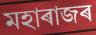
মহাৰাজৰ